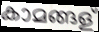
കാമങ്ങള്